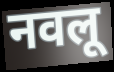
नवलू